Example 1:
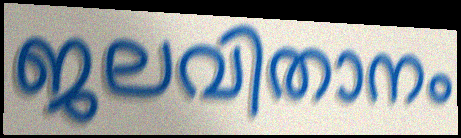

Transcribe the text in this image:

ജലവിതാനം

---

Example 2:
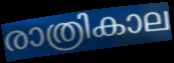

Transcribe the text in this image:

രാത്രികാല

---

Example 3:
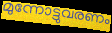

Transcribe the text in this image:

മുന്നോട്ടുവരണം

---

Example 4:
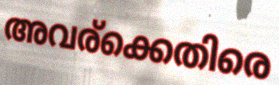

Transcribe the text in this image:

അവര്ക്കെതിരെ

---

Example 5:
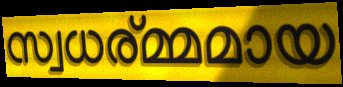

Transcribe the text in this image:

സ്വധര്മ്മമായ